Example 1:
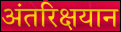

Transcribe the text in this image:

अंतरिक्षयान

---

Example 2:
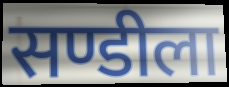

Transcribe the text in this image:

सण्डीला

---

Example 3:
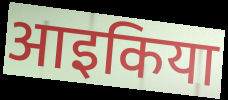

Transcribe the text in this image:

आइकिया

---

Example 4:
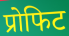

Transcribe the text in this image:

प्रोफिट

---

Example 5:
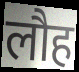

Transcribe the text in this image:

लौह